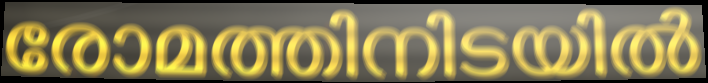
രോമത്തിനിടയിൽ